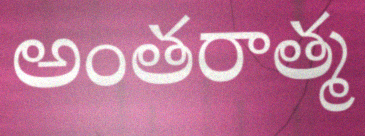
అంతరాత్మ